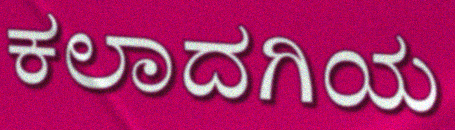
ಕಲಾದಗಿಯ